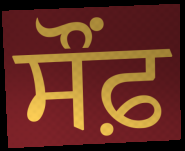
ਸੌਂਫ਼